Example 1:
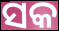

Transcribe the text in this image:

ସକ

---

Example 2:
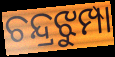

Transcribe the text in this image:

ଚନ୍ଦ୍ରଝୁମ୍ପା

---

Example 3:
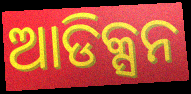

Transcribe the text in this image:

ଆଡିକ୍ସନ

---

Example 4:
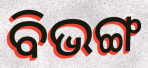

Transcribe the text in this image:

ବିଭଙ୍ଗ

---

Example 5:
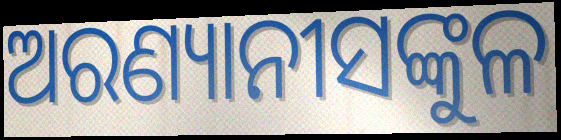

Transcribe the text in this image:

ଅରଣ୍ୟାନୀସଙ୍କୁଳ